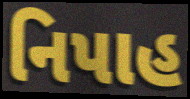
નિપાહ